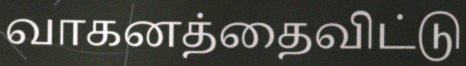
வாகனத்தைவிட்டு